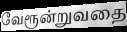
வேரூன்றுவதை